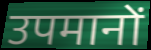
उपमानों